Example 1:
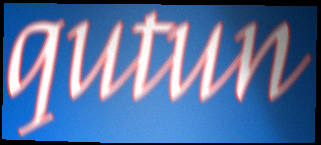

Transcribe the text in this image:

qutun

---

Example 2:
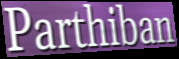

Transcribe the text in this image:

Parthiban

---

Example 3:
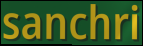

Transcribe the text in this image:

sanchri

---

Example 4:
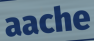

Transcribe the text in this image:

aache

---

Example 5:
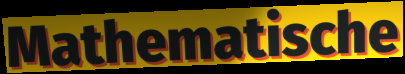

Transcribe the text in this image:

Mathematische